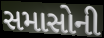
સમાસોની